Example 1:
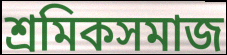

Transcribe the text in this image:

শ্রমিকসমাজ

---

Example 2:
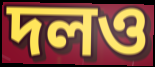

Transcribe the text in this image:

দলও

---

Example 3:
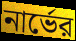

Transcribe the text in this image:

নার্ভের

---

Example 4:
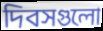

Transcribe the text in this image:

দিবসগুলো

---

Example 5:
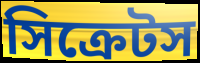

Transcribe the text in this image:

সিক্রেটস